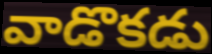
వాడొకడు